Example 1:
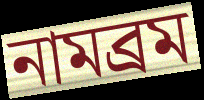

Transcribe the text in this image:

নামব্রম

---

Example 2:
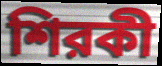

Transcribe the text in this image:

শিরকী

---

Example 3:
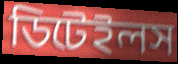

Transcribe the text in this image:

ডিটেইলস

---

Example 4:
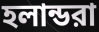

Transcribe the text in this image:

হলান্ডরা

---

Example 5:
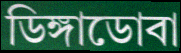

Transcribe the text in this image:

ডিঙ্গাডোবা